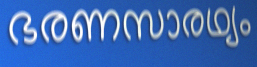
ഭരണസാരഥ്യം